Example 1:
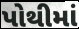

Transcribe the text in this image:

પોથીમાં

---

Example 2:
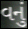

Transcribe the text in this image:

વનું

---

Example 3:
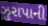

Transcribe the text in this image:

ઝુરાપાની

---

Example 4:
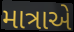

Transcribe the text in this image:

માત્રાએ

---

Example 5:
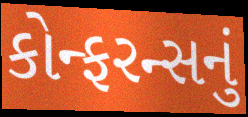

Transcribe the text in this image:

કોન્ફરન્સનું